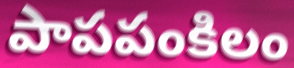
పాపపంకిలం